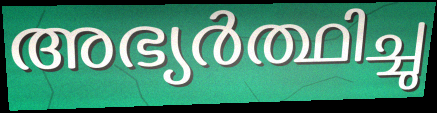
അഭ്യർത്ഥിച്ചു